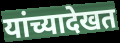
यांच्यादेखत